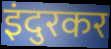
इंदुरकर